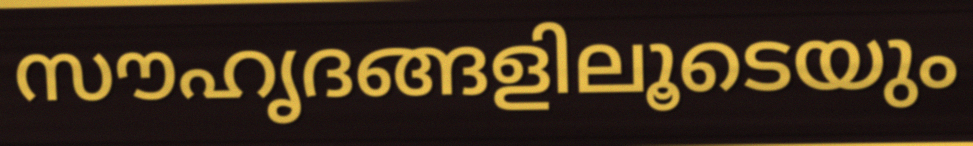
സൗഹൃദങ്ങളിലൂടെയും